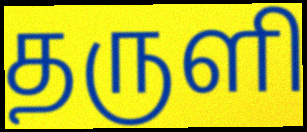
தருளி